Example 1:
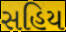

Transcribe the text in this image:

સહિય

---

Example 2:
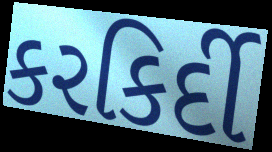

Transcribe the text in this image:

કરકિર્દી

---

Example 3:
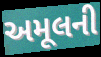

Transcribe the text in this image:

અમૂલની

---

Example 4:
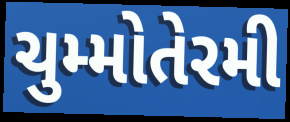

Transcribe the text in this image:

ચુમ્મોતેરમી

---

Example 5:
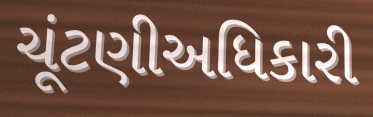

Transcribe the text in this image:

ચૂંટણીઅધિકારી